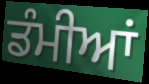
ਡੰਮੀਆਂ